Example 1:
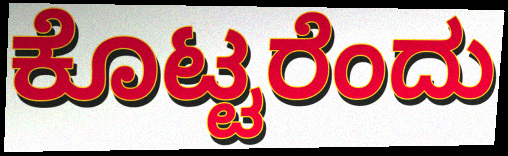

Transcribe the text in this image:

ಕೊಟ್ಟರೆಂದು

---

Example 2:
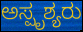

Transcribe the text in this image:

ಅಸ್ಪೃಶ್ಯರು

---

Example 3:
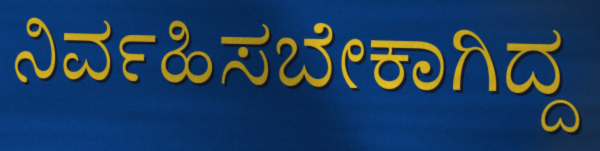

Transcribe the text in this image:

ನಿರ್ವಹಿಸಬೇಕಾಗಿದ್ದ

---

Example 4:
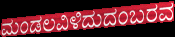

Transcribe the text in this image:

ಮಂಡಲವಿಳಿದುದಂಬರವ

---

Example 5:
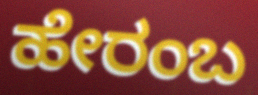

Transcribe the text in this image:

ಹೇರಂಬ